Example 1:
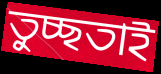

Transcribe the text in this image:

তুচ্ছতাই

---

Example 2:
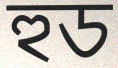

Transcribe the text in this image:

হুড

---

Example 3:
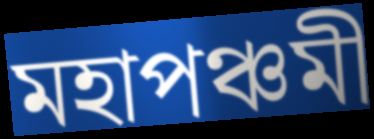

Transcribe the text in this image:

মহাপঞ্চমী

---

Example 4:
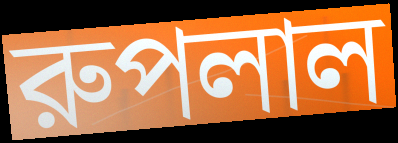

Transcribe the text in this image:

রুপলাল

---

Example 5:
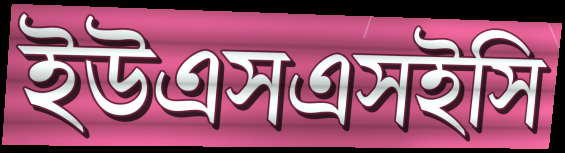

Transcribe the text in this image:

ইউএসএসইসি